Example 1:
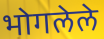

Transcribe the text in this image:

भोगलेले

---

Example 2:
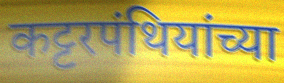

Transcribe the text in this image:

कट्टरपंथियांच्या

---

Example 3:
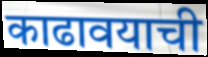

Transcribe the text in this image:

काढावयाची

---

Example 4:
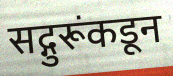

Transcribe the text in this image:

सद्गुरूंकडून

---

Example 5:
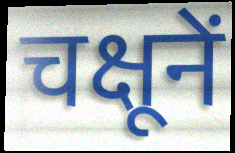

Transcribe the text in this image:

चक्षूनें